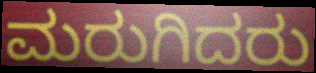
ಮರುಗಿದರು